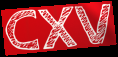
CXV